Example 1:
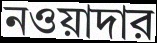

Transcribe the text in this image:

নওয়াদার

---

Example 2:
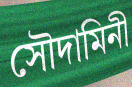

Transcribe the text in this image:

সৌদামিনী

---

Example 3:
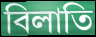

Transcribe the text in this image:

বিলাতি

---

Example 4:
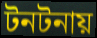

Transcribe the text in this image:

টনটনায়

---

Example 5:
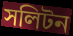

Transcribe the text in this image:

সলিটন